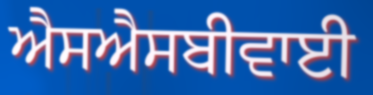
ਐਸਐਸਬੀਵਾਈ